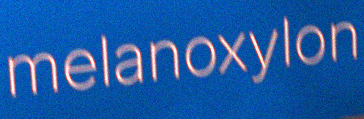
melanoxylon